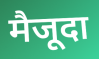
मैजूदा